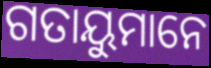
ଗତାୟୁମାନେ